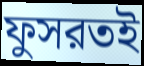
ফুসরতই